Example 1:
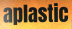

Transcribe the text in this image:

aplastic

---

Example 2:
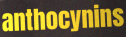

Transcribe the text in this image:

anthocynins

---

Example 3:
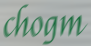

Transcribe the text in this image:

chogm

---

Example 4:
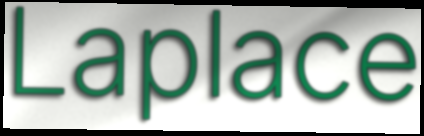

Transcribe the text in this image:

Laplace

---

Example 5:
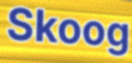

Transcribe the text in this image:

Skoog